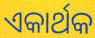
ଏକାର୍ଥକ